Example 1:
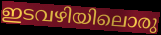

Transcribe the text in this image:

ഇടവഴിയിലൊരു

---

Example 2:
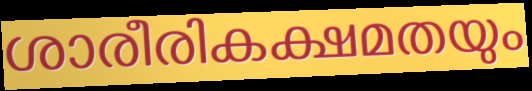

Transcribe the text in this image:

ശാരീരികക്ഷമതയും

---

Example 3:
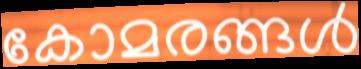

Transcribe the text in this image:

കോമരങ്ങൾ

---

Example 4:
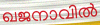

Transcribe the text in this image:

ഖജനാവിൽ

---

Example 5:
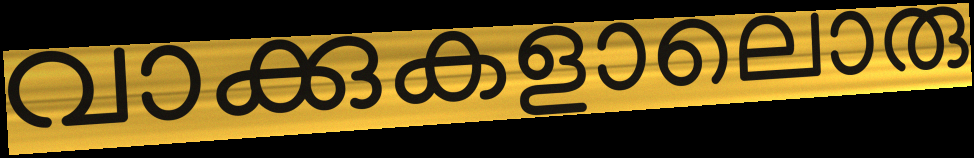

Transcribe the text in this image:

വാക്കുകളാലൊരു